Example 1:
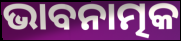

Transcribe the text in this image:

ଭାବନାତ୍ମକ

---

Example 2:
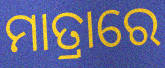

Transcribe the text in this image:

ମାତ୍ରାରେ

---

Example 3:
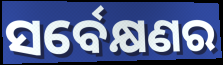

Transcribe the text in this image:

ସର୍ବେକ୍ଷଣର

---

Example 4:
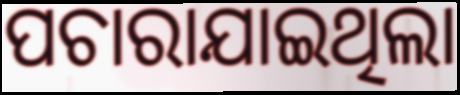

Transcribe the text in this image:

ପଚାରାଯାଇଥିଲା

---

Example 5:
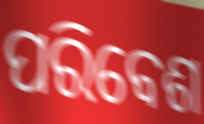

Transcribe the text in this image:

ପରିବେଶ